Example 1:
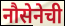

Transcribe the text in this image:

नौसेनेची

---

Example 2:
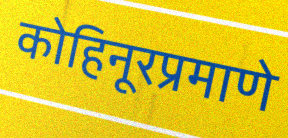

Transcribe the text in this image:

कोहिनूरप्रमाणे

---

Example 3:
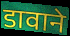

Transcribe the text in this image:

डावाने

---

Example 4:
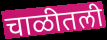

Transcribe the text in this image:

चाळीतली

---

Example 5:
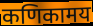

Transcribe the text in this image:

कणिकामय